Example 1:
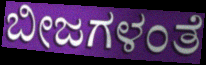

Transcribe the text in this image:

ಬೀಜಗಳಂತೆ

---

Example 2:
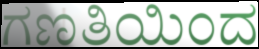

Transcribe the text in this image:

ಗಣತಿಯಿಂದ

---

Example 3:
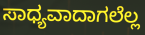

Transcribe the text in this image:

ಸಾಧ್ಯವಾದಾಗಲೆಲ್ಲ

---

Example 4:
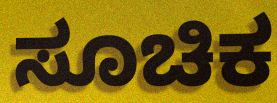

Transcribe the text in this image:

ಸೂಚಿಕ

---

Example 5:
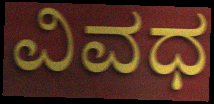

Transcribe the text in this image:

ವಿವಧ